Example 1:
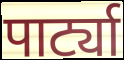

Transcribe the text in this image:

पार्ट्या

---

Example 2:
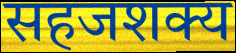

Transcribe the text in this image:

सहजशक्य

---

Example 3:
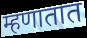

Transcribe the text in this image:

म्हणातात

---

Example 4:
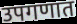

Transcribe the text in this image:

उपगणात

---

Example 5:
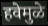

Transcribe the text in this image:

हवेमुळे